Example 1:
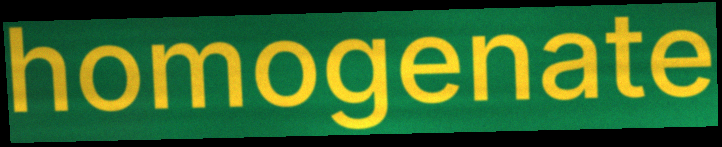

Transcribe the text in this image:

homogenate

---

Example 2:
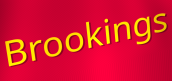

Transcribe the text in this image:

Brookings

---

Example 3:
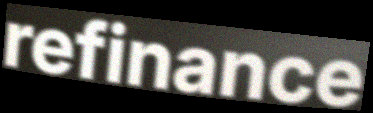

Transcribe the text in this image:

refinance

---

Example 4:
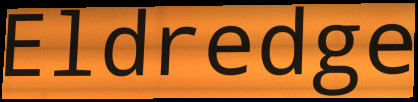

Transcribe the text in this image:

Eldredge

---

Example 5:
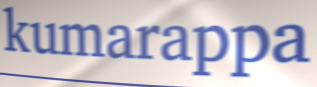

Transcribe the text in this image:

kumarappa